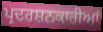
ਪ੍ਰਦਰਸ਼ਨਕਾਰੀਆਂ